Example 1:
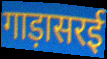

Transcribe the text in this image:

गाड़ासरई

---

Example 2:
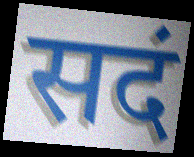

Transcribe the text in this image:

सदं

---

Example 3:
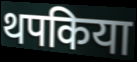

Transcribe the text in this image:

थपकिया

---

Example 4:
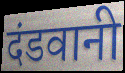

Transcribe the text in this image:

दंडवानी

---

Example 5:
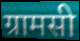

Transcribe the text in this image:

ग्रामसी